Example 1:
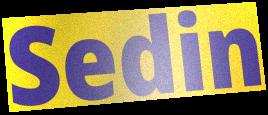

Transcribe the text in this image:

Sedin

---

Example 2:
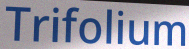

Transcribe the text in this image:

Trifolium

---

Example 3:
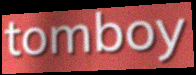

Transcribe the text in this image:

tomboy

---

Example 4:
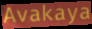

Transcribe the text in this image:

Avakaya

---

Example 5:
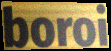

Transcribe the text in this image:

boroi